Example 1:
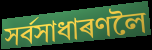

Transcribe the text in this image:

সৰ্বসাধাৰণলৈ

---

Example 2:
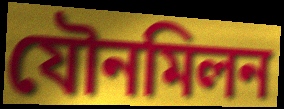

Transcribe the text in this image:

যৌনমিলন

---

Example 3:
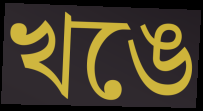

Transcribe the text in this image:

খঙে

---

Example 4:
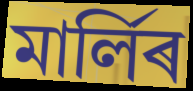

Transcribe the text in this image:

মাৰ্লিৰ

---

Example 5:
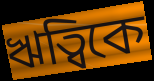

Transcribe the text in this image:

ঋত্বিকে